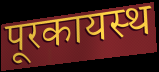
पूरकायस्थ